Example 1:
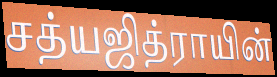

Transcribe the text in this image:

சத்யஜித்ராயின்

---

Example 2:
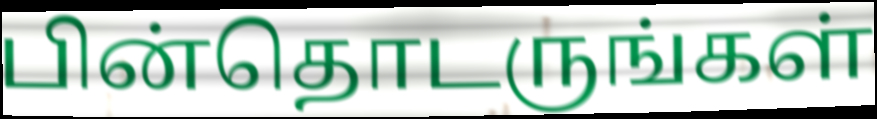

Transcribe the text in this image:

பின்தொடருங்கள்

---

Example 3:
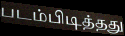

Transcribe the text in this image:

படம்பிடித்தது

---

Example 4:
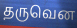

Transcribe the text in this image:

தருவென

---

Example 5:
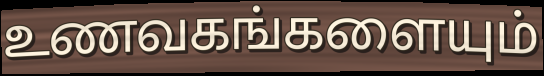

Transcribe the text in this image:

உணவகங்களையும்